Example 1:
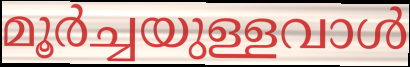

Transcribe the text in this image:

മൂർച്ചയുള്ളവാൾ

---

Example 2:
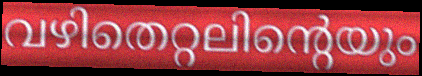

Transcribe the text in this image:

വഴിതെറ്റലിന്റെയും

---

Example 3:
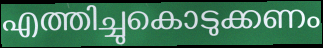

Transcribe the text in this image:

എത്തിച്ചുകൊടുക്കണം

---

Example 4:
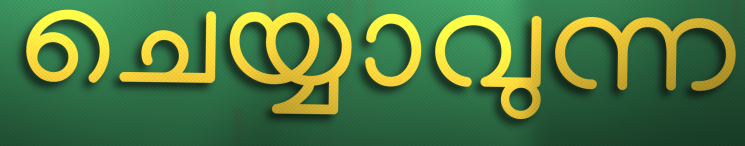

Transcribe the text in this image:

ചെയ്യാവുന്ന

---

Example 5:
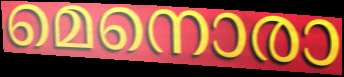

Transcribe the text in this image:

മെനൊരാ